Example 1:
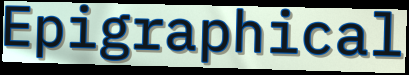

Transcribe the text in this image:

Epigraphical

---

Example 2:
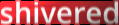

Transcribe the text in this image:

shivered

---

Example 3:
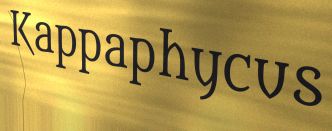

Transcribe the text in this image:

Kappaphycus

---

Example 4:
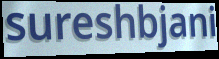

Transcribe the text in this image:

sureshbjani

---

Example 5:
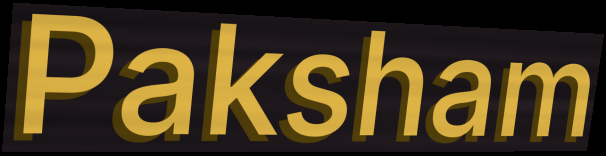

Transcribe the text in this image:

Paksham